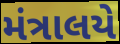
મંત્રાલયે